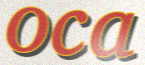
oca